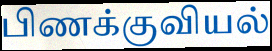
பிணக்குவியல்